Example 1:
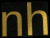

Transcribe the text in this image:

nh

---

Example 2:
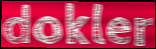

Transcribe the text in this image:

dokler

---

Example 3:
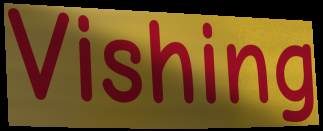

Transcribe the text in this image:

Vishing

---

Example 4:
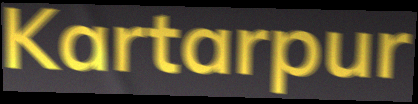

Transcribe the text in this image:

Kartarpur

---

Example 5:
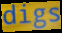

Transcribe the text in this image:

digs